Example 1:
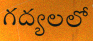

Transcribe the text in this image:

గద్యలలో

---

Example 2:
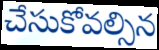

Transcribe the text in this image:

చేసుకోవల్సిన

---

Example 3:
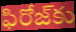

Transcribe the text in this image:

ఫిరోజ్‌కు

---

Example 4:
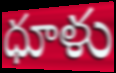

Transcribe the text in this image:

ధూళు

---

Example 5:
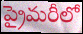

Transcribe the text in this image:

ప్రైమరీలో